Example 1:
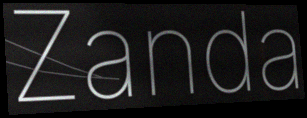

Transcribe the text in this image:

Zanda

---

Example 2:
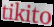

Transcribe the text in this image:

tikito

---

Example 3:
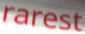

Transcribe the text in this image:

rarest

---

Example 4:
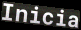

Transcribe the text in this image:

Inicia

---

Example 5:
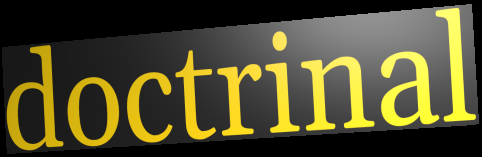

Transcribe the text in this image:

doctrinal